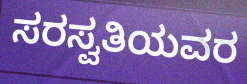
ಸರಸ್ವತಿಯವರ